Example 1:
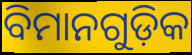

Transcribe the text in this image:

ବିମାନଗୁଡ଼ିକ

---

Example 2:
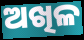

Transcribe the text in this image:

ଅଖିଳ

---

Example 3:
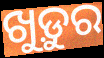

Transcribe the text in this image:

ଖୁଡ଼ୁର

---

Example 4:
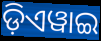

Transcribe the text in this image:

ଡ଼ିଏୱାଇ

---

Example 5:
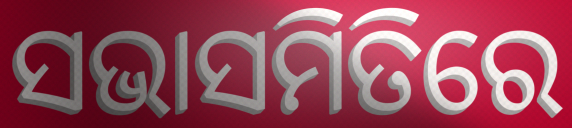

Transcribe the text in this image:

ସଭାସମିତିରେ